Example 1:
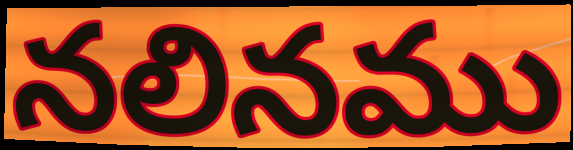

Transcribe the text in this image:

నలినము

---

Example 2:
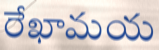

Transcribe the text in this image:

రేఖామయ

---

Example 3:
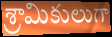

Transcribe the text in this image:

శ్రామికులుగా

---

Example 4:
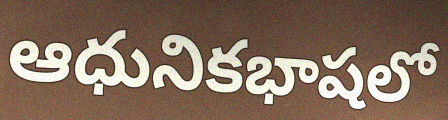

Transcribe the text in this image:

ఆధునికభాషలో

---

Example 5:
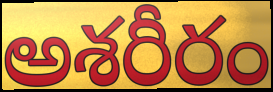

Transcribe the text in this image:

అశరీరం